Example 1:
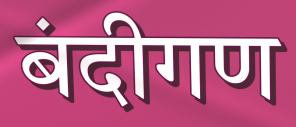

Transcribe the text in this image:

बंदीगण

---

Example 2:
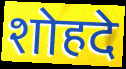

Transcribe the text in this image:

शोहदे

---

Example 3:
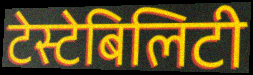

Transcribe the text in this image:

टेस्टेबिलिटी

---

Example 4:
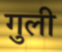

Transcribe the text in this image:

गुली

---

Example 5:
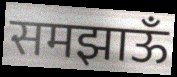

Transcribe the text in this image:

समझाऊँ